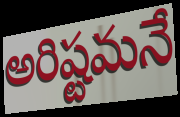
అరిష్టమనే